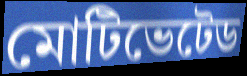
মোটিভেটেড